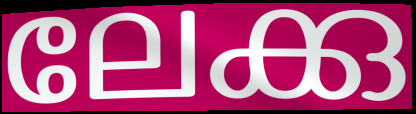
ലേക്കു